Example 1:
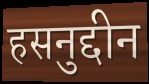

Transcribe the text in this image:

हसनुद्दीन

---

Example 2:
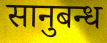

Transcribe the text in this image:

सानुबन्ध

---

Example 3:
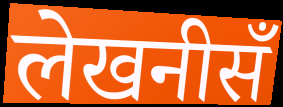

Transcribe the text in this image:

लेखनीसँ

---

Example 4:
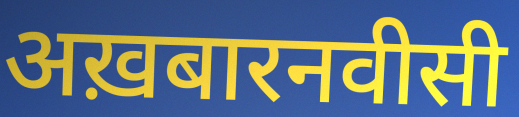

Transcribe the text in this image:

अख़बारनवीसी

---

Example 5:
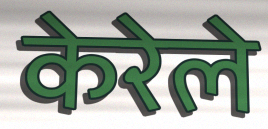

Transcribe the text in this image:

केरेले